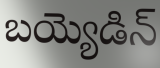
బయ్యెడిన్